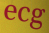
ecg